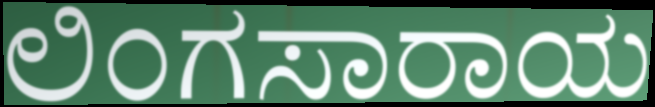
ಲಿಂಗಸಾರಾಯ